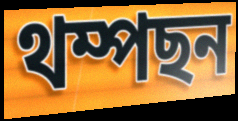
থম্পছন